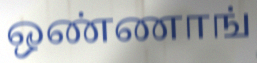
ஒண்ணாங்